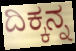
ದಿಕ್ಕನ್ನ